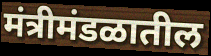
मंत्रीमंडळातील